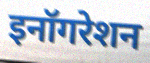
इनॉगरेशन